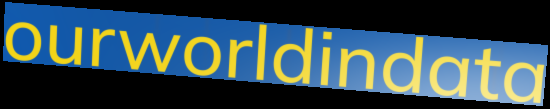
ourworldindata